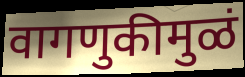
वागणुकीमुळं